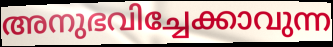
അനുഭവിച്ചേക്കാവുന്ന